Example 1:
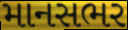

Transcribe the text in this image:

માનસભર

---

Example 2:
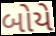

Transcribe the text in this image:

બોયે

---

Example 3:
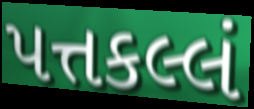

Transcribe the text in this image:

પત્તકલ્લં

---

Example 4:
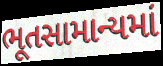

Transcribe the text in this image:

ભૂતસામાન્યમાં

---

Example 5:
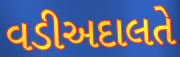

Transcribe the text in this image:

વડીઅદાલતે